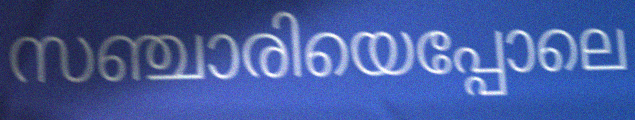
സഞ്ചാരിയെപ്പോലെ